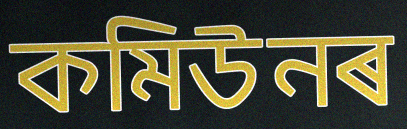
কমিউনৰ